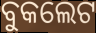
ବୁକଲେଟ